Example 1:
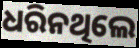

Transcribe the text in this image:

ଧରିନଥିଲେ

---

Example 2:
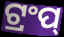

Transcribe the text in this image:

ଟ୍ରଂପ୍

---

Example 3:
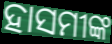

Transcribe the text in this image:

ହାସମୀଙ୍କ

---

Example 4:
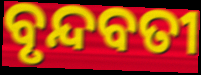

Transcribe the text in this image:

ବୃନ୍ଦବତୀ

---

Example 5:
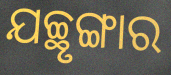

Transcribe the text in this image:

ଯଚ୍ଛୃଙ୍ଗାର